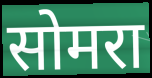
सोमरा